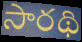
సారథి